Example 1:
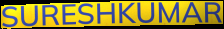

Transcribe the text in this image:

SURESHKUMAR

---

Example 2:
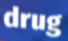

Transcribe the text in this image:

drug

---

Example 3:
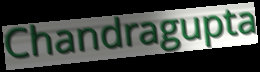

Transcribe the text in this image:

Chandragupta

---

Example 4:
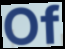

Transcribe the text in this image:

Of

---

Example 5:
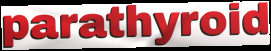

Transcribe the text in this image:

parathyroid